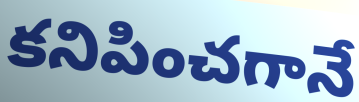
కనిపించగానే